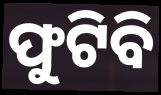
ଫୁଟିବି